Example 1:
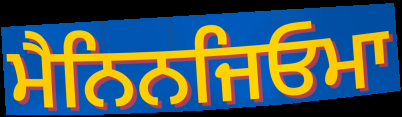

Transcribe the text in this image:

ਮੈਨਿਨਜਿਓਮਾ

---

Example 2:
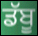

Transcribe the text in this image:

ਡੱਬੂ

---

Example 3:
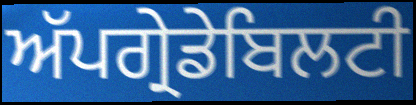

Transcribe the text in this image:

ਅੱਪਗ੍ਰੇਡੇਬਿਲਟੀ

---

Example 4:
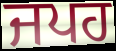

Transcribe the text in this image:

ਜਪਹ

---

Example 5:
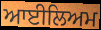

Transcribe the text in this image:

ਆਈਲਿਅਮ